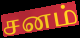
சனம்